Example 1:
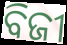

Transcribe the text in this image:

ବିଜୀ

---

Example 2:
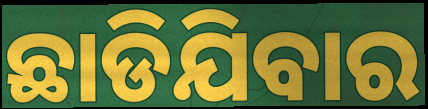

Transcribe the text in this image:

ଛାଡିଯିବାର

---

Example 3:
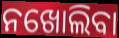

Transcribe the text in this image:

ନଖୋଲିବା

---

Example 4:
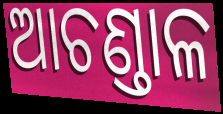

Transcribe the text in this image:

ଆଚଣ୍ଡାଳ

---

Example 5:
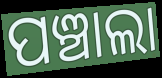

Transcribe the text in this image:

ପଞ୍ଚାଲା